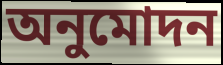
অনুমোদন